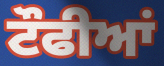
ਟੌਫੀਆਂ